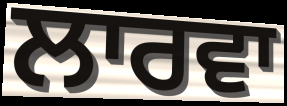
ਲਾਰਵਾ